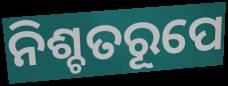
ନିଶ୍ଚତରୂପେ